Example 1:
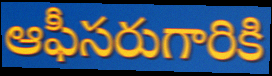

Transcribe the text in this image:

ఆఫీసరుగారికి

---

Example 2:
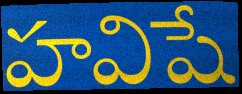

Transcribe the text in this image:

హవిషే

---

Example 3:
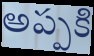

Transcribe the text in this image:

అప్పకి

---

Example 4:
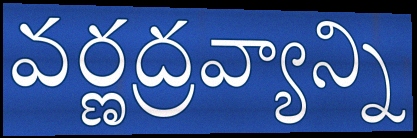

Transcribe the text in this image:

వర్ణద్రవ్యాన్ని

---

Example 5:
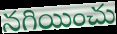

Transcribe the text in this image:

నగియించు